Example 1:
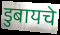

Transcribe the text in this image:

डुबायचे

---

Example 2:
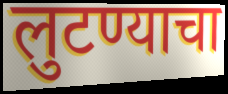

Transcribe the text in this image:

लुटण्याचा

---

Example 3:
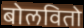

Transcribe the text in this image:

बोलवितो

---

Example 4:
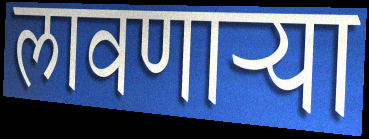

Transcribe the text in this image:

लावणाऱ्या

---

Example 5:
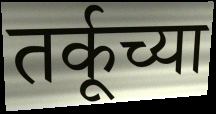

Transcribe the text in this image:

तर्कूच्या